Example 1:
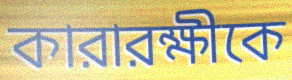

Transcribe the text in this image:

কারারক্ষীকে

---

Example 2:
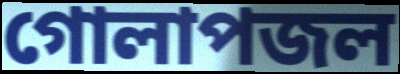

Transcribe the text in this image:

গোলাপজল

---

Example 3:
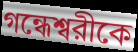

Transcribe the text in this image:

গন্ধেশ্বরীকে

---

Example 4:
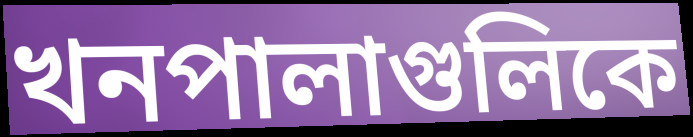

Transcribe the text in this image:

খনপালাগুলিকে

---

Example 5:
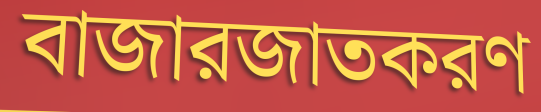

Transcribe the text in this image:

বাজারজাতকরণ